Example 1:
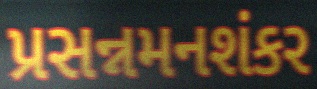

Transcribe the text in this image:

પ્રસન્નમનશંકર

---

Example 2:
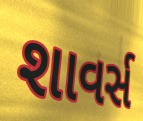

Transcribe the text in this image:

શાવર્સ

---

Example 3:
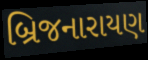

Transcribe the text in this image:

બ્રિજનારાયણ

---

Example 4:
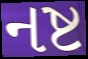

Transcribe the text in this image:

નષ્ટ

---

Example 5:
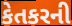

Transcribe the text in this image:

કેતકરની